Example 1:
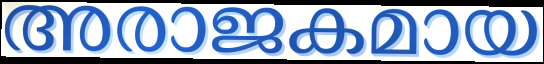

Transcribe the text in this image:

അരാജകമായ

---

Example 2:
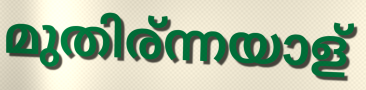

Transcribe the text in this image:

മുതിര്ന്നയാള്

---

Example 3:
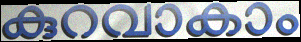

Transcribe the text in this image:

കുറവാകാം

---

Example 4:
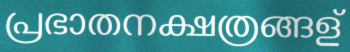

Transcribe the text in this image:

പ്രഭാതനക്ഷത്രങ്ങള്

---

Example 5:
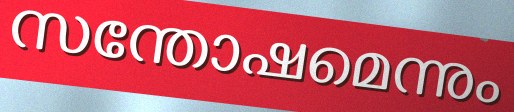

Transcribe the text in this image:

സന്തോഷമെന്നും